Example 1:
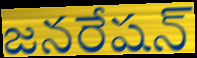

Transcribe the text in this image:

జనరేషన్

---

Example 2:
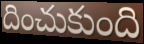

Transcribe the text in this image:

దించుకుంది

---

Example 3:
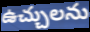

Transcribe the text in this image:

ఉచ్చులను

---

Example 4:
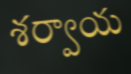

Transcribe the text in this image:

శర్వాయ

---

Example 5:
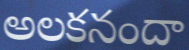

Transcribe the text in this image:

అలకనందా